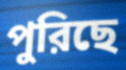
পুরিছে